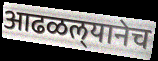
आढळल्यानेच